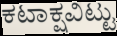
ಕಟಾಕ್ಷವಿಟ್ಟು